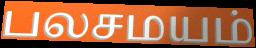
பலசமயம்